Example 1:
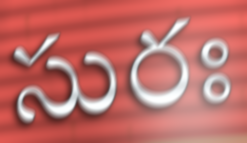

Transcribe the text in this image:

సురః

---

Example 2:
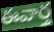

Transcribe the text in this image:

ఈవార్త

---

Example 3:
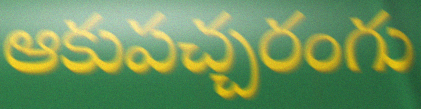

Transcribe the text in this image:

ఆకుపచ్చరంగు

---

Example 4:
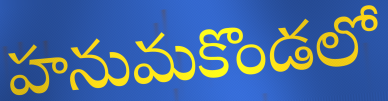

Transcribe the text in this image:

హనుమకొండలో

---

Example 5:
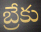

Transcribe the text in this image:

బ్రేకు